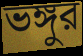
ভঙ্গুর